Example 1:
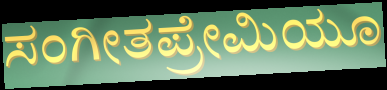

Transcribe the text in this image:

ಸಂಗೀತಪ್ರೇಮಿಯೂ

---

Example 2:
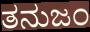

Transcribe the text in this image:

ತನುಜಂ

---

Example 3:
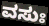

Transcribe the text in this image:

ವಸುಃ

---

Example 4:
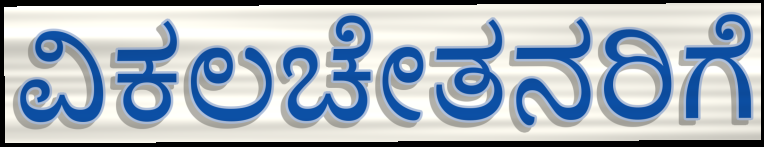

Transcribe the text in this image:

ವಿಕಲಚೇತನರಿಗೆ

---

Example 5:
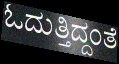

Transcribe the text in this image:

ಓದುತ್ತಿದ್ದಂತೆ